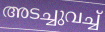
അടച്ചുവച്ച്